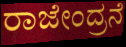
ರಾಜೇಂದ್ರನೆ